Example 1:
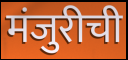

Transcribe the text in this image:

मंजुरीची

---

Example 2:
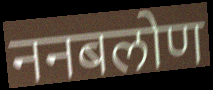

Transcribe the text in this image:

ननबलोण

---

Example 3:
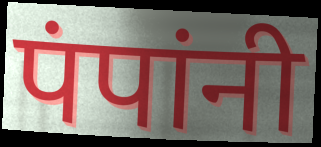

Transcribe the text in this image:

पंपांनी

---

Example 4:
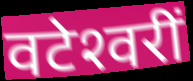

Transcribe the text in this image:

वटेश्वरीं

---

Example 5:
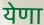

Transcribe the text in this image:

येणा